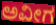
ಅವೀಗ